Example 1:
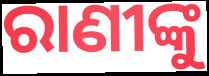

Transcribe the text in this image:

ରାଣୀଙ୍କୁ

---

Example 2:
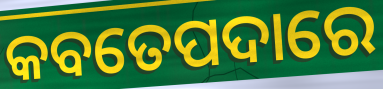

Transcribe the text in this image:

କବତେପଦାରେ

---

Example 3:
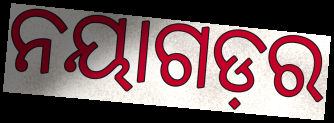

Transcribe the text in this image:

ନୟାଗଡ଼ର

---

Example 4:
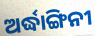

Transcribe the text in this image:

ଅର୍ଦ୍ଧାଙ୍ଗିନୀ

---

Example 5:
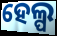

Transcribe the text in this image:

ହେଲ୍ପ